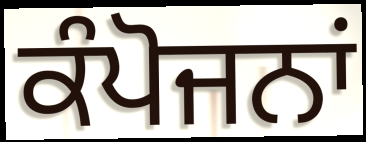
ਕੰਪੋਜਨਾਂ